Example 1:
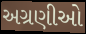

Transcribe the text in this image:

અગ્રણીઓ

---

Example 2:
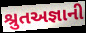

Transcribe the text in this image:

શ્રુતઅજ્ઞાની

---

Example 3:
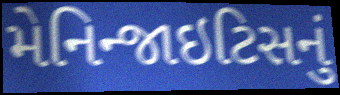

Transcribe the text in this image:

મેનિન્જાઇટિસનું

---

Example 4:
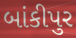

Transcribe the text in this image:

બાંકીપુર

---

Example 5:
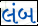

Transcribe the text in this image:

લંબ